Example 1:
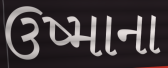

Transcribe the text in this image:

ઉષ્માના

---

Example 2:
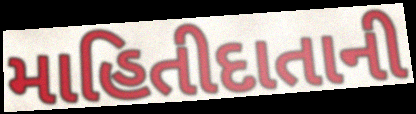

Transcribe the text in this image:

માહિતીદાતાની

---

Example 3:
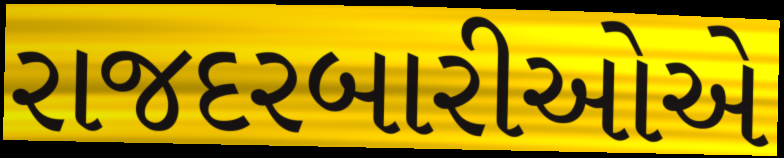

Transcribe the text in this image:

રાજદરબારીઓએ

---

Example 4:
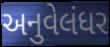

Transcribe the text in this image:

અનુવેલંધર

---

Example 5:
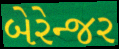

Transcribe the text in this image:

બેરેન્જર